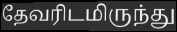
தேவரிடமிருந்து